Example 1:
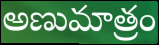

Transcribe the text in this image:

అణుమాత్రం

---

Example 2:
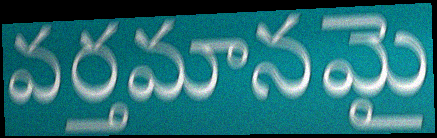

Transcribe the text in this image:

వర్తమానమై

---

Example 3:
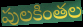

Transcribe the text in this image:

పులకింతల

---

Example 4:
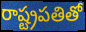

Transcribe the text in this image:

రాష్ట్రపతితో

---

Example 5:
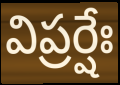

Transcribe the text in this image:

విప్రర్షేః